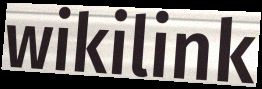
wikilink